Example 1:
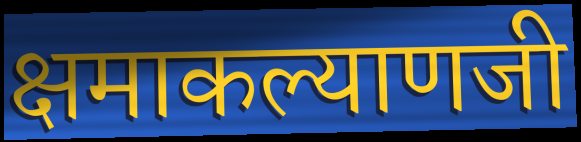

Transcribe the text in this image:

क्षमाकल्याणजी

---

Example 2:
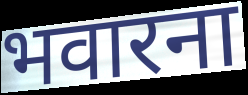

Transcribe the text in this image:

भवारना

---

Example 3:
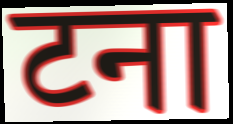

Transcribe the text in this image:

टना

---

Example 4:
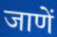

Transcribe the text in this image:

जाणें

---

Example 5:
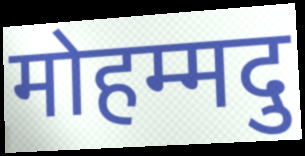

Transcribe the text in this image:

मोहम्मदु